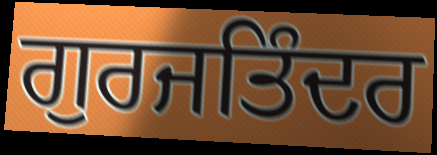
ਗੁਰਜਤਿੰਦਰ